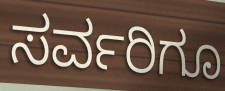
ಸರ್ವರಿಗೂ